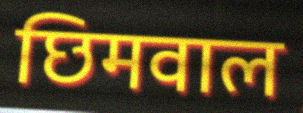
छिमवाल